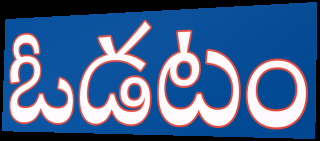
ఓడటం